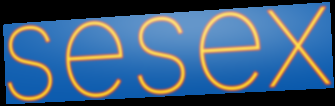
sesex